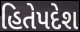
હિતેપદેશ